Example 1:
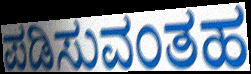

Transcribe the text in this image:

ಪಡಿಸುವಂತಹ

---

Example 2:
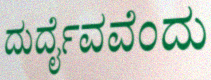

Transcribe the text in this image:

ದುರ್ದೈವವೆಂದು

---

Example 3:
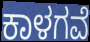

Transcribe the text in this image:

ಕಾಳಗವೆ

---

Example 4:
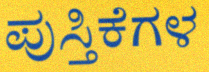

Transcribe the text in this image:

ಪುಸ್ತಿಕೆಗಳ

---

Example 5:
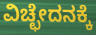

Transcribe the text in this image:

ವಿಚ್ಛೇದನಕ್ಕೆ